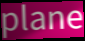
plane